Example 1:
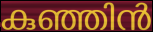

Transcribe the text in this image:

കുഞ്ഞിൻ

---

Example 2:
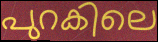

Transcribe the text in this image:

പുറകിലെ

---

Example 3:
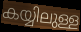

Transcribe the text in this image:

കയ്യിലുള്ള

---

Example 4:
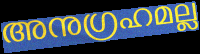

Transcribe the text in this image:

അനുഗ്രഹമല്ല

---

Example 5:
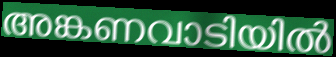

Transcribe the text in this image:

അങ്കണവാടിയിൽ